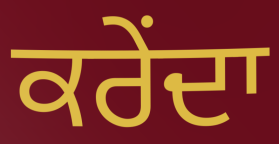
ਕਰੇਂਦਾ